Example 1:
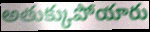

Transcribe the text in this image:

అతుక్కుపోయారు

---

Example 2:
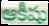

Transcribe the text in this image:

ఆకీషు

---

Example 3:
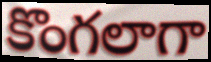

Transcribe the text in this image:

కొంగలాగా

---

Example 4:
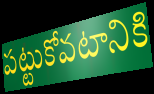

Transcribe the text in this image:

పట్టుకోవటానికి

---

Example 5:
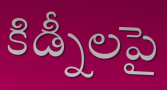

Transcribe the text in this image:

కిడ్నీలపై